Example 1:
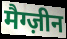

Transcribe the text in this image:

मैग्ज़ीन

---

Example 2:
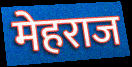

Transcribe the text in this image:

मेहराज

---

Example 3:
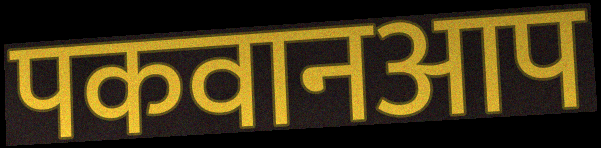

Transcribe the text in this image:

पकवानआप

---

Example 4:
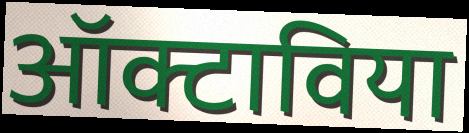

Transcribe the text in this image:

ऑक्टाविया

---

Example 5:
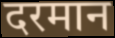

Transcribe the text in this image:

दरमान